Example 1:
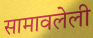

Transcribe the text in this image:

सामावलेली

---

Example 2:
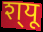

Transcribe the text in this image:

श्यू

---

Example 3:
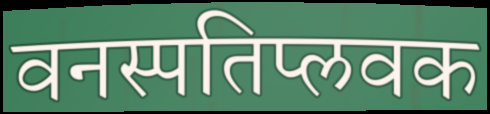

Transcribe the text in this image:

वनस्पतिप्लवक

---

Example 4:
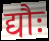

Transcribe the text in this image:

द्यौः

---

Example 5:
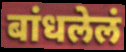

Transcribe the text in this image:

बांधलेलं